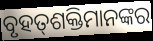
ବୃହତ୍‌ଶକ୍ତିମାନଙ୍କର